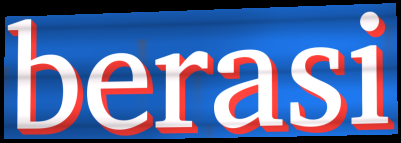
berasi